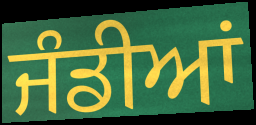
ਜੰਡੀਆਂ